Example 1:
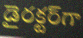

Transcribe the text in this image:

డైరక్టర్‌గా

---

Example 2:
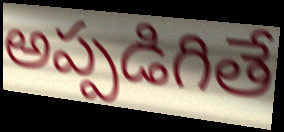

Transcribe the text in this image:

అప్పడిగితే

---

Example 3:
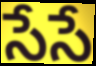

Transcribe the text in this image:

సేసే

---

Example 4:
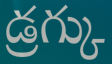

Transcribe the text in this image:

డ్రగ్కు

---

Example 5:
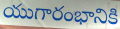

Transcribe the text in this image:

యుగారంభానికి